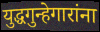
युद्धगुन्हेगारांना